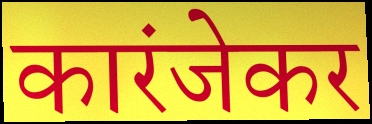
कारंजेकर